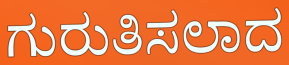
ಗುರುತಿಸಲಾದ